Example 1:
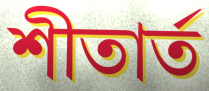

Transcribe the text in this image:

শীতাৰ্ত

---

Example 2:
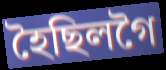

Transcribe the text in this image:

হৈছিলগৈ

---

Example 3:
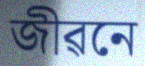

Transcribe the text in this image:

জীৱনে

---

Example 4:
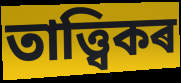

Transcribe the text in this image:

তাত্ত্বিকৰ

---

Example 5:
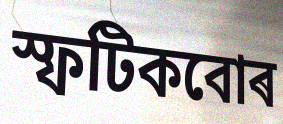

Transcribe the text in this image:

স্ফটিকবোৰ